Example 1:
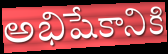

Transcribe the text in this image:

అభిషేకానికి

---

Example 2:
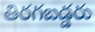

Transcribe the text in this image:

తిరగబడ్డరు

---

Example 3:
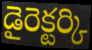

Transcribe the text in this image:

డైరెక్టర్కి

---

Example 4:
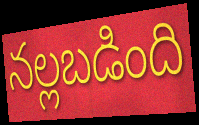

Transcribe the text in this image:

నల్లబడింది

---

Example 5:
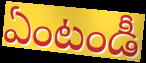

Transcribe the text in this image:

ఏంటండీ